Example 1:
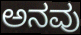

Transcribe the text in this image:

ಅನವು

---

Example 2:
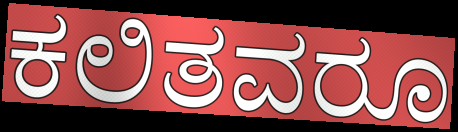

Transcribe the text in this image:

ಕಲಿತವರೂ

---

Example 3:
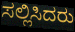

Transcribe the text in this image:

ಸಲ್ಲಿಸಿದರು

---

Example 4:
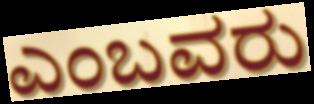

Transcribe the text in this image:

ಎಂಬವರು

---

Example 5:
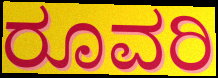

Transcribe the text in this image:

ರೂವರಿ